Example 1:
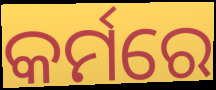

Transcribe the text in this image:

କର୍ମରେ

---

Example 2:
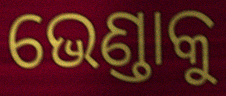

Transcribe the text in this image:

ଭେଣ୍ଡାକୁ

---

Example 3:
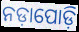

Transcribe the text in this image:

ନଡ଼ାପୋଡ଼ି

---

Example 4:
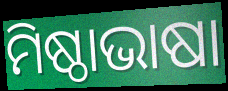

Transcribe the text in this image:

ମିଷ୍ଠାଭାଷା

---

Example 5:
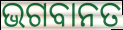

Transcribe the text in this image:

ଭଗବାନତ